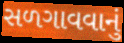
સળગાવવાનું